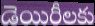
డెయిరీలకు